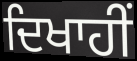
ਦਿਖਾਹੀਂ